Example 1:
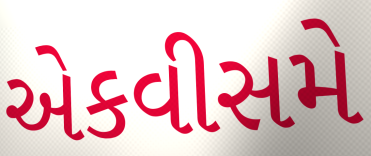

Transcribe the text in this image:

એકવીસમે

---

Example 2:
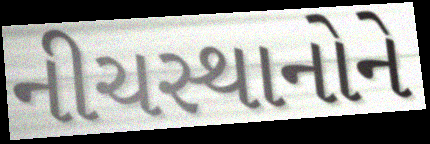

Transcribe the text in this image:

નીચસ્થાનોને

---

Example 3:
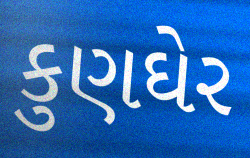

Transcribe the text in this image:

કુણઘેર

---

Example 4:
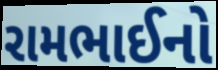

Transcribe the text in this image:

રામભાઈનો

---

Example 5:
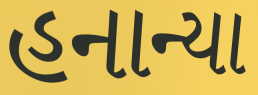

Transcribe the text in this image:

હનાન્યા